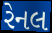
રેનલ